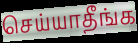
செய்யாதீங்க